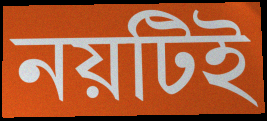
নয়টিই